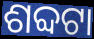
ଶବ୍ଦଟା